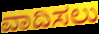
ವಾದಿಸಲು